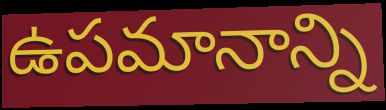
ఉపమానాన్ని